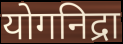
योगनिद्रा